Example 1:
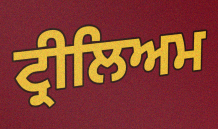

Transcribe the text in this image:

ਟ੍ਰੀਲਿਅਮ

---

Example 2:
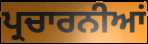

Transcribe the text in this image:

ਪ੍ਰਚਾਰਨੀਆਂ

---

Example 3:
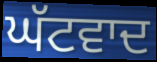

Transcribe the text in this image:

ਘੱਟਵਾਦ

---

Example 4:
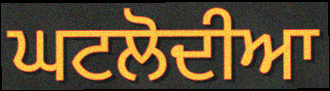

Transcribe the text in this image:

ਘਟਲੋਦੀਆ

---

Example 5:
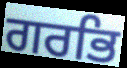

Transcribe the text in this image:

ਗਰਭਿ